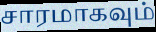
சாரமாகவும்